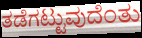
ತಡೆಗಟ್ಟುವುದೆಂತು